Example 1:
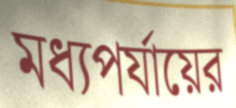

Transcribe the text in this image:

মধ্যপর্যায়ের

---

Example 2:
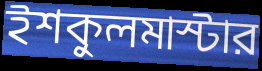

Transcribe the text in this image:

ইশকুলমাস্টার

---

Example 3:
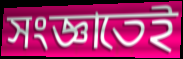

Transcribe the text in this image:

সংজ্ঞাতেই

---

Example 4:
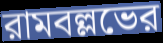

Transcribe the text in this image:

রামবল্লভের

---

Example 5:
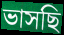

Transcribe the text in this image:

ভাসছি